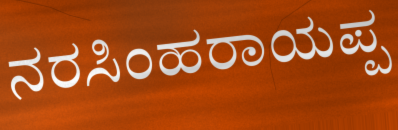
ನರಸಿಂಹರಾಯಪ್ಪ